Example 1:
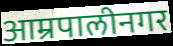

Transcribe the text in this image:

आम्रपालीनगर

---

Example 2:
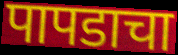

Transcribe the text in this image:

पापडाचा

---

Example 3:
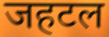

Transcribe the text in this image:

जहटल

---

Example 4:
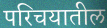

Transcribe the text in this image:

परिचयातील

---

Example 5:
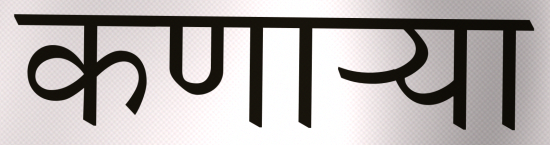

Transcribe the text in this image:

कणाऱ्या